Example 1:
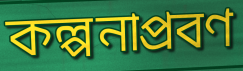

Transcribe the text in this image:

কল্পনাপ্রবণ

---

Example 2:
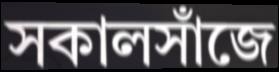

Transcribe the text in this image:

সকালসাঁজে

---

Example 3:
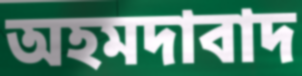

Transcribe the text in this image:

অহমদাবাদ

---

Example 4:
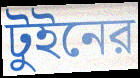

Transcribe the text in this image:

টুইনের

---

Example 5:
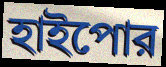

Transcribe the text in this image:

হাইপোর